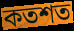
কতশত